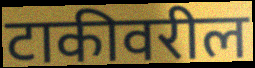
टाकीवरील